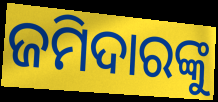
ଜମିଦାରଙ୍କୁ